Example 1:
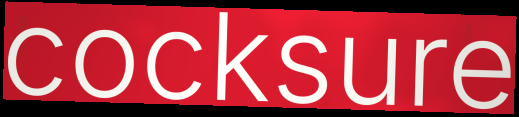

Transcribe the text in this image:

cocksure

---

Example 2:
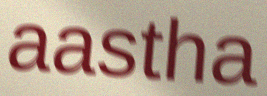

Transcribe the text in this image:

aastha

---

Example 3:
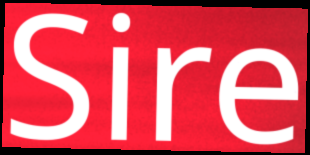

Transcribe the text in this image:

Sire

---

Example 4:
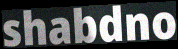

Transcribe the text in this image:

shabdno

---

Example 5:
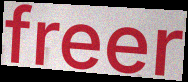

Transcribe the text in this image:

freer